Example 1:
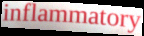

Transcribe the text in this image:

inflammatory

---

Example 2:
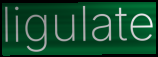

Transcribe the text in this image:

ligulate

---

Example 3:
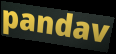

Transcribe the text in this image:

pandav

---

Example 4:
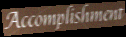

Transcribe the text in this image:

Accomplishment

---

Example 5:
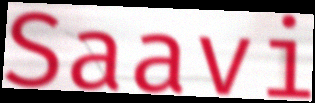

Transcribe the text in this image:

Saavi